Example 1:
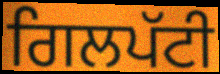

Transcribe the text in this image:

ਗਿਲਪੱਟੀ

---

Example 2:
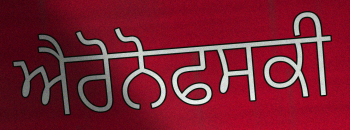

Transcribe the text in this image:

ਐਰੋਨੋਫਸਕੀ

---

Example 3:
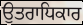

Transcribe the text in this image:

ਉਤਰਾਧਿਕਾਰ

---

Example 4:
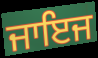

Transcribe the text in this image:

ਜਾਇਜ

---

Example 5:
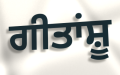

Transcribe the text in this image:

ਗੀਤਾਂਸ਼ੂ